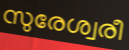
സുരേശ്വരീ